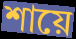
শায়ে